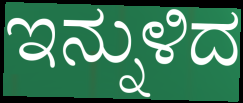
ಇನ್ನುಳಿದ